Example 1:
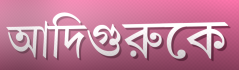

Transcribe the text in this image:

আদিগুরুকে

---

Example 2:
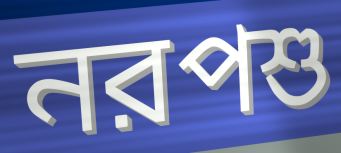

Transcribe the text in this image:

নরপশু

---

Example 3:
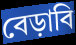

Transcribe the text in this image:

বেড়াবি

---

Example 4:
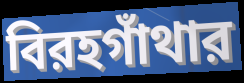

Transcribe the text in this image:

বিরহগাঁথার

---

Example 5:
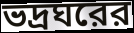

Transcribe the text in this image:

ভদ্রঘরের